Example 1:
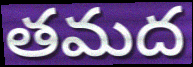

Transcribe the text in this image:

తమద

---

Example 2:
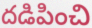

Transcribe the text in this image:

దడిపించి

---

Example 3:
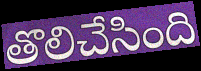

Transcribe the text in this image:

తొలిచేసింది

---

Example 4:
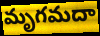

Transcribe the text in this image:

మృగమదా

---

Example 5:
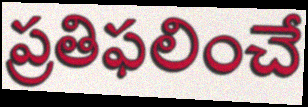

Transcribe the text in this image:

ప్రతిఫలించే